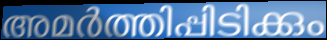
അമർത്തിപ്പിടിക്കും